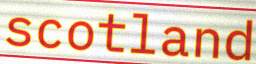
scotland